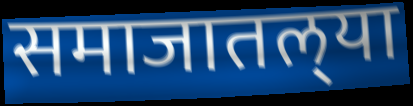
समाजातल्या